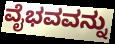
ವೈಭವವನ್ನು